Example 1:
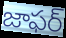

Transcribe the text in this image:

జాఫర్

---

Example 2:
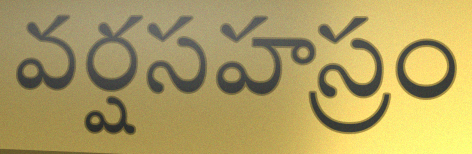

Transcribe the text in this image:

వర్షసహస్రం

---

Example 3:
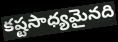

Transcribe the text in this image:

కష్టసాధ్యమైనది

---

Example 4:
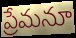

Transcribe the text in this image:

ప్రేమనూ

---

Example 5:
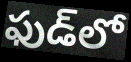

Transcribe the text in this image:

ఫుడ్‌లో